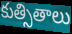
కుత్సితాలు